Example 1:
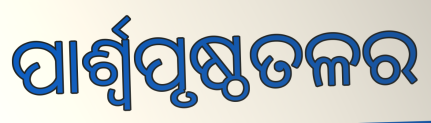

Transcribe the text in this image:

ପାର୍ଶ୍ଵପୃଷ୍ଠତଳର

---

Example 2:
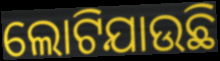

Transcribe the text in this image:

ଲୋଟିଯାଉଛି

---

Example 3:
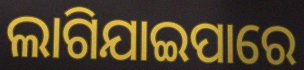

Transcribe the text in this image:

ଲାଗିଯାଇପାରେ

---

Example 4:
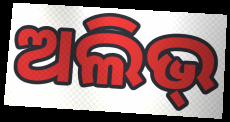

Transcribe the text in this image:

ଅଲିଭ୍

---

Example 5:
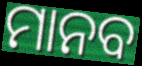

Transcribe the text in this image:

ମାନବ